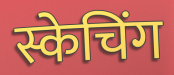
स्केचिंग